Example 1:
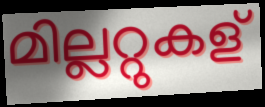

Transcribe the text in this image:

മില്ലറ്റുകള്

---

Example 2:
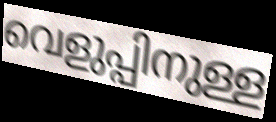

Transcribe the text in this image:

വെളുപ്പിനുള്ള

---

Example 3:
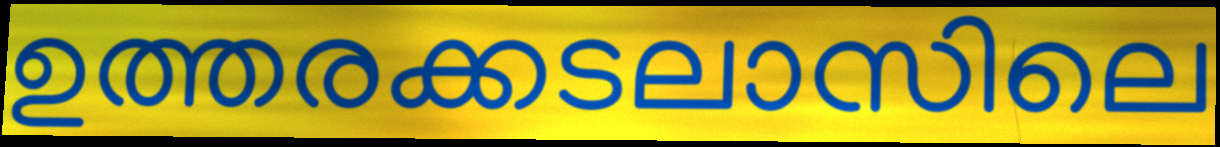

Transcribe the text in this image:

ഉത്തരക്കടലാസിലെ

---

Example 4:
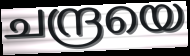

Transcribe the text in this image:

ചന്ദ്രയെ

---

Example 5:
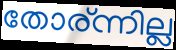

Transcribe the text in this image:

തോര്ന്നില്ല